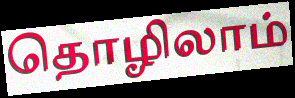
தொழிலாம்